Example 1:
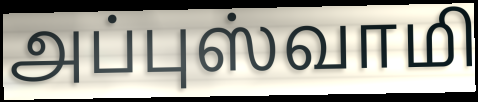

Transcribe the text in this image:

அப்புஸ்வாமி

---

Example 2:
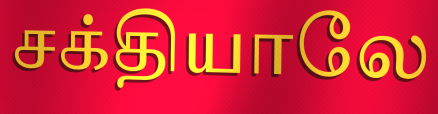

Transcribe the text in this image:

சக்தியாலே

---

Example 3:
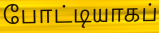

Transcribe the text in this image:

போட்டியாகப்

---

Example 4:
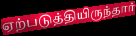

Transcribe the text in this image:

ஏற்படுத்தியிருந்தார்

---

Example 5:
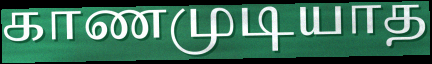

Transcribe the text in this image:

காணமுடியாத